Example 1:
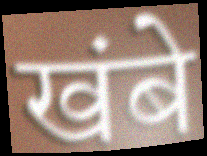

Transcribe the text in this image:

खंबे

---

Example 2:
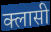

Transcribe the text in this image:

क्लासी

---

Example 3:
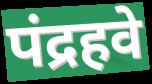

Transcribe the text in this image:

पंद्रहवे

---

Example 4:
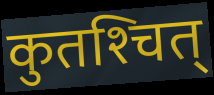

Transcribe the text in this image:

कुतश्चित्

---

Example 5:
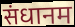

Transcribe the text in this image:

संधानम